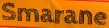
Smarane